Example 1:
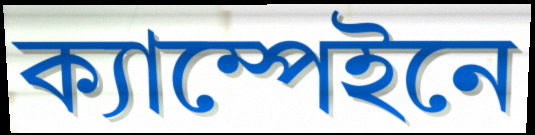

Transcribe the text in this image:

ক্যাম্পেইনে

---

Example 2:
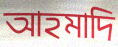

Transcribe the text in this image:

আহমাদি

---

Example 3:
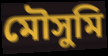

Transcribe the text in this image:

মৌসুমি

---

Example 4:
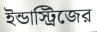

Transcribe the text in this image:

ইন্ডাস্ট্রিজের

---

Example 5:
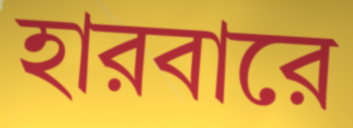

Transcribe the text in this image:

হারবারে